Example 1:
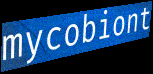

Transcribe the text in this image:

mycobiont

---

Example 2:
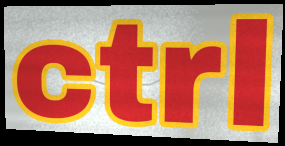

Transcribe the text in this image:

ctrl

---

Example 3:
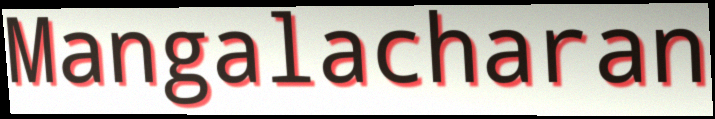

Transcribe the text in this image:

Mangalacharan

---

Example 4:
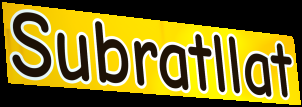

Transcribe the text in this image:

Subratllat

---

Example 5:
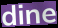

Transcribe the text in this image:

dine